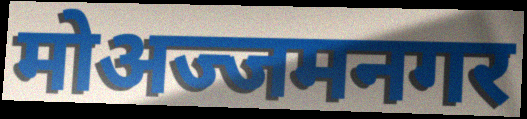
मोअज्जमनगर